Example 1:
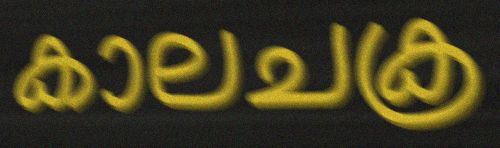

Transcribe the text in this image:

കാലചക്ര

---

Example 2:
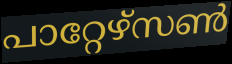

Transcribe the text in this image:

പാറ്റേഴ്സൺ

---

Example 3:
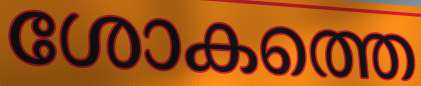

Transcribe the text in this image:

ശോകത്തെ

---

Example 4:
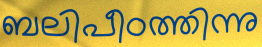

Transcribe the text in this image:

ബലിപീഠത്തിന്നു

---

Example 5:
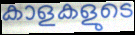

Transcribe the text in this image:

കാളകളുടെ